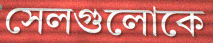
সেলগুলোকে